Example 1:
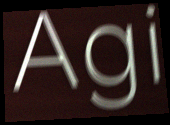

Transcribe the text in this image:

Agi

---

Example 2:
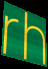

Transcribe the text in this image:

rh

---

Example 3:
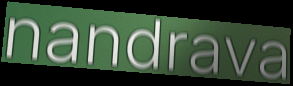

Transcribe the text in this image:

nandrava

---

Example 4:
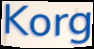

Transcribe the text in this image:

Korg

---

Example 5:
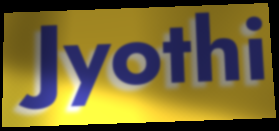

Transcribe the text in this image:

Jyothi